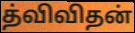
த்விவிதன்